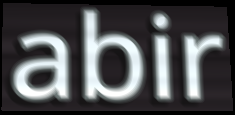
abir